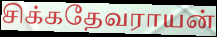
சிக்கதேவராயன்